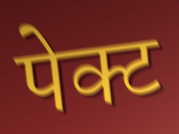
पेक्ट